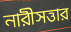
নারীসত্তার